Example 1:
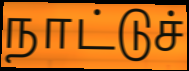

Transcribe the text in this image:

நாட்டுச்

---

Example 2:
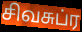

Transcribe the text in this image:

சிவசுப்ர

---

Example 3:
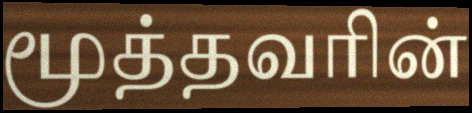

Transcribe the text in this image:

மூத்தவரின்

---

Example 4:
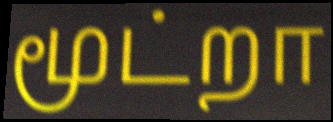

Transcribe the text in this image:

மூட்றா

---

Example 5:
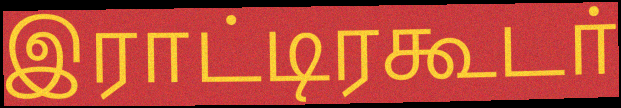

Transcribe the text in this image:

இராட்டிரகூடர்